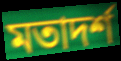
মতাদৰ্শ